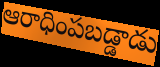
ఆరాధింపబడ్డాడు